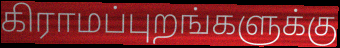
கிராமப்புறங்களுக்கு